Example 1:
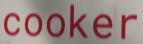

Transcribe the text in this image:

cooker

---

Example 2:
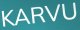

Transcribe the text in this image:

KARVU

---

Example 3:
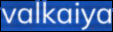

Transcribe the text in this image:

valkaiya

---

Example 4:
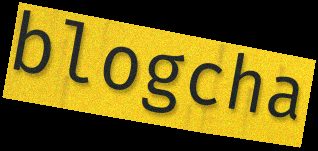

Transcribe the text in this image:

blogcha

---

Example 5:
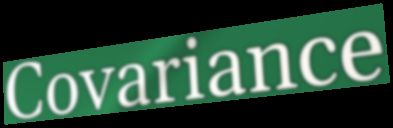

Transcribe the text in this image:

Covariance